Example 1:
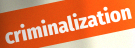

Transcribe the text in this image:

criminalization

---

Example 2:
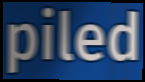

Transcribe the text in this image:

piled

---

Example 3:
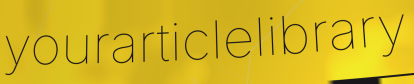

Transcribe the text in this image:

yourarticlelibrary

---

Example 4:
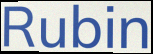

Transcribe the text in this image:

Rubin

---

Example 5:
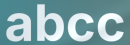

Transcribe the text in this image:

abcc